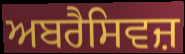
ਅਬਰੈਸਿਵਜ਼